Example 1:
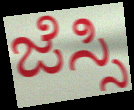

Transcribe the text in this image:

ಜೆಸ್ಸಿ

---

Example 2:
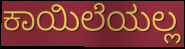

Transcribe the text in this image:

ಕಾಯಿಲೆಯಲ್ಲ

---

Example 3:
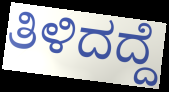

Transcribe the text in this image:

ತಿಳಿದದ್ದೆ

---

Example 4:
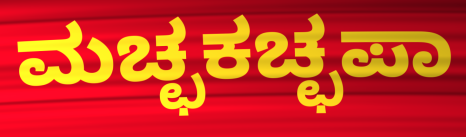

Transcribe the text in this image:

ಮಚ್ಛಕಚ್ಛಪಾ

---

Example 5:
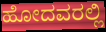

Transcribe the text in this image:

ಹೋದವರಲ್ಲಿ